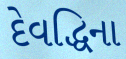
દેવદ્ધિના